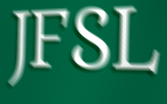
JFSL